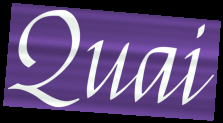
Quai